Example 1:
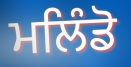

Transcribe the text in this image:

ਮਲਿੰਡੋ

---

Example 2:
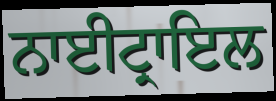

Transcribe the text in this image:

ਨਾਈਟ੍ਰਾਇਲ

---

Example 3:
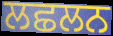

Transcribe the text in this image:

ਲਛਲਨ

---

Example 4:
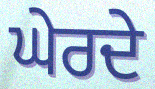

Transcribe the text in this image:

ਘੇਰਦੇ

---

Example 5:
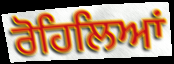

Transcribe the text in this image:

ਰੋਹਿਲਿਆਂ